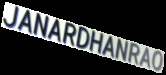
JANARDHANRAO